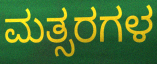
ಮತ್ಸರಗಳ